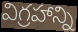
విగ్రహాన్ని